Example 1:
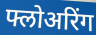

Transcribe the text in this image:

फ्लोअरिंग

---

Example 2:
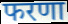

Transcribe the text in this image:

फरणा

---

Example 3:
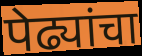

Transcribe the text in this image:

पेढ्यांचा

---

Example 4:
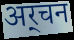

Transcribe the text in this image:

अर्चन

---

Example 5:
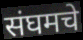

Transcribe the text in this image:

संघमचे